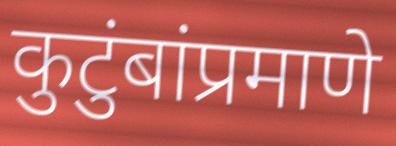
कुटुंबांप्रमाणे